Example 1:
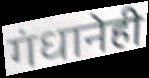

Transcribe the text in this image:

गंधानेही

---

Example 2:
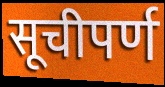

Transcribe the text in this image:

सूचीपर्ण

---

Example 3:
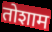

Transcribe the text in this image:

तोशाम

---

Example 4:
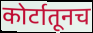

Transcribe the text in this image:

कोर्टातूनच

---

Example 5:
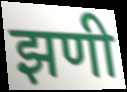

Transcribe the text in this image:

झणी